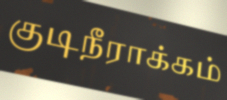
குடிநீராக்கம்